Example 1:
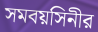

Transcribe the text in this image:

সমবয়সিনীর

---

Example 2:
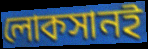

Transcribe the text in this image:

লোকসানই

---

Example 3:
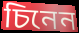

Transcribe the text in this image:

চিনেন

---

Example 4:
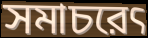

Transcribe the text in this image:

সমাচরেৎ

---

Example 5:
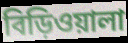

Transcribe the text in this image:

বিড়িওয়ালা